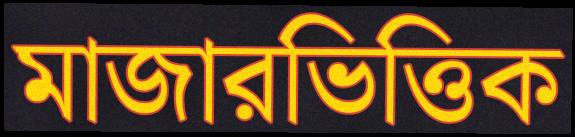
মাজারভিত্তিক